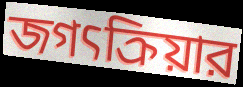
জগৎক্রিয়ার